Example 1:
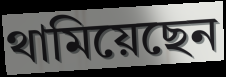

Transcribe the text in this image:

থামিয়েছেন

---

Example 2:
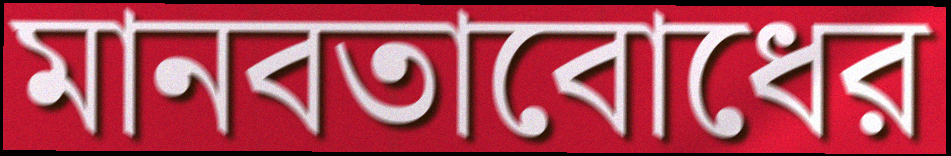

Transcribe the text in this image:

মানবতাবোধের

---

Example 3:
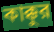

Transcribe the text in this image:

কাক্কুর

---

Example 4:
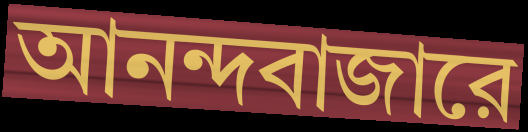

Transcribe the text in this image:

আনন্দবাজারে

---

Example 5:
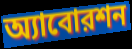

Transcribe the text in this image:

অ্যাবোরশন